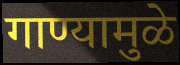
गाण्यामुळे